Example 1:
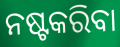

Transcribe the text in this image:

ନଷ୍ଟକରିବା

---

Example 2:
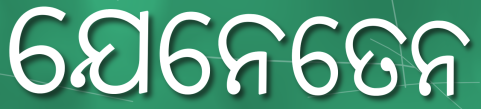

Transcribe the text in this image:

ଯେନେତେନ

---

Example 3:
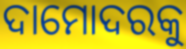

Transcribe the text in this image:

ଦାମୋଦରକୁ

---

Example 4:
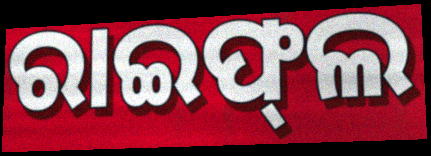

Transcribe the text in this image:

ରାଇଫ୍‌ଲ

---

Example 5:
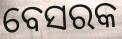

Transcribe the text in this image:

ବେସରକ